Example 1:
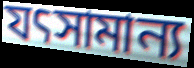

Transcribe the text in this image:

যৎসামান্য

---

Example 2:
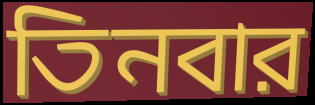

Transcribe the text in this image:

তিনবার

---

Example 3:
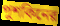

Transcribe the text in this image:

পুশকিনের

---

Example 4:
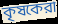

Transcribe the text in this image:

কৃষকেরা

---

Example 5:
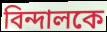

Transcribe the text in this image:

বিন্দালকে